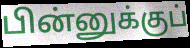
பின்னுக்குப்